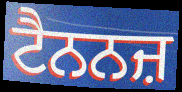
ਟੈਨਨਜ਼